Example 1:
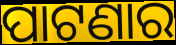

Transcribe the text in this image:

ପାଟଣାର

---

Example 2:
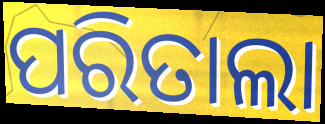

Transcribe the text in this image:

ପରିତାଲା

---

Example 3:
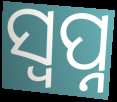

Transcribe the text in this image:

ସ୍ବପ୍ନ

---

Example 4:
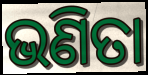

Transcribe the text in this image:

ଭଣିତା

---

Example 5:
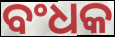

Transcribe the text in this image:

ବଂଧକ